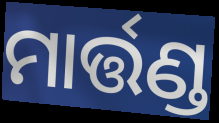
ମାର୍ତ୍ତଣ୍ଡ